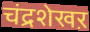
चंद्रशेखऱ